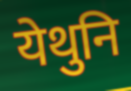
येथुनि